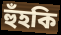
হুঁহকি